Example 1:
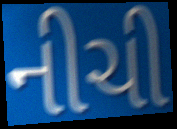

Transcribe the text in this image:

નીચી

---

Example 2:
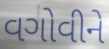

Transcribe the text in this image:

વગોવીને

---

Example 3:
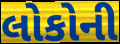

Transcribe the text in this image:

લોકોની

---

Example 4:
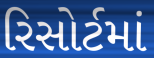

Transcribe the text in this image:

રિસોર્ટમાં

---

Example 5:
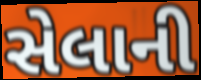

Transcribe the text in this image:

સેલાની